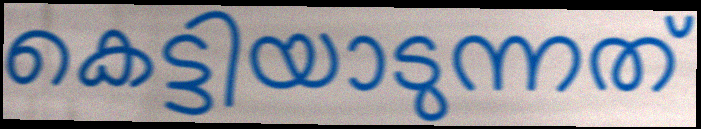
കെട്ടിയാടുന്നത്